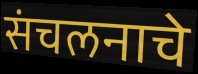
संचलनाचे